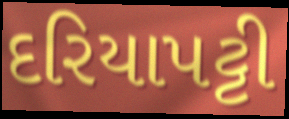
દરિયાપટ્ટી